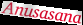
Anusasana